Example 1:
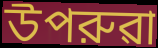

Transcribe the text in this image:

উপৰুৱা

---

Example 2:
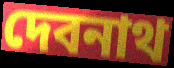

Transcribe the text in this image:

দেবনাথ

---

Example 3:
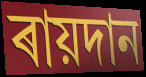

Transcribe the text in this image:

ৰায়দান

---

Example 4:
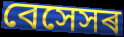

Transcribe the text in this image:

বেসেসৰ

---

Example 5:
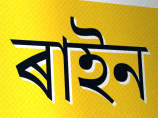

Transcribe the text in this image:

ৰাইন